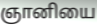
ஞானியை